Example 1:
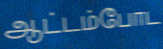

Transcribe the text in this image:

ஆட்டம்போட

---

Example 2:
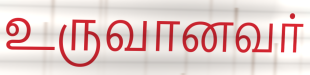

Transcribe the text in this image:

உருவானவர்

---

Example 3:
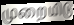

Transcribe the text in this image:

முறையிடு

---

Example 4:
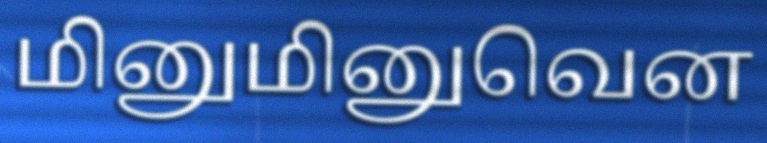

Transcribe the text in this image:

மினுமினுவென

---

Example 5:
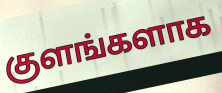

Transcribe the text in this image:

குளங்களாக